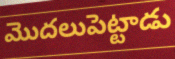
మొదలుపెట్టాడు